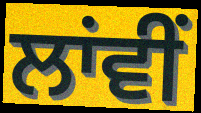
ਲਾਂਵੀਂ